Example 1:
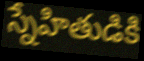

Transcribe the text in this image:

స్నేహితుడికి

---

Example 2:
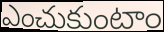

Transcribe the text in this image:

ఎంచుకుంటాం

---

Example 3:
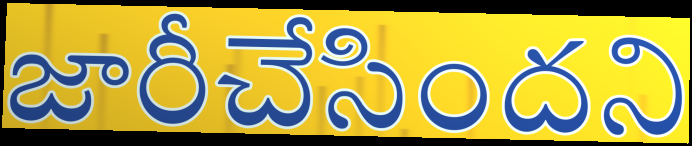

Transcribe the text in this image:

జారీచేసిందని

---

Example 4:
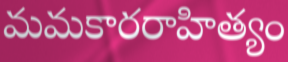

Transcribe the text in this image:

మమకారరాహిత్యం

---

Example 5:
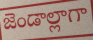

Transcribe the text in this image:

జెండాల్లాగా